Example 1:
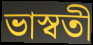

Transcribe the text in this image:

ভাস্বতী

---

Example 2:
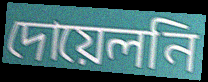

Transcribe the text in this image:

দোয়েলনি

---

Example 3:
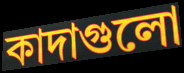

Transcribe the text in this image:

কাদাগুলো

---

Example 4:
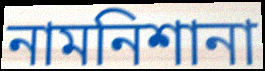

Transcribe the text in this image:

নামনিশানা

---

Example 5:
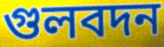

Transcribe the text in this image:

গুলবদন